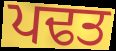
ਪਢਤ